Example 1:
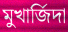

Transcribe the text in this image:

মুখার্জিদা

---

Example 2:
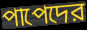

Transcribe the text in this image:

পাপেদের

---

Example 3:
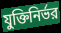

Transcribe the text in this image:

যুক্তিনির্ভর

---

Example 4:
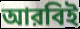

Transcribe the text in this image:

আরবিই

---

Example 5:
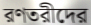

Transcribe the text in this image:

রণতরীদের